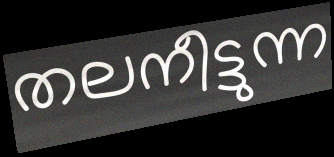
തലനീട്ടുന്ന